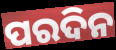
ପରଦିନ